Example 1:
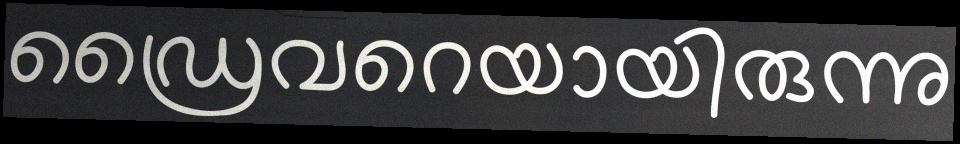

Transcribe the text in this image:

ഡ്രൈവറെയായിരുന്നു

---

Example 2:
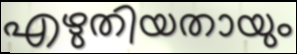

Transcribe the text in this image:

എഴുതിയതായും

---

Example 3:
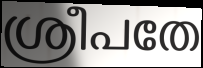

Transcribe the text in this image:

ശ്രീപതേ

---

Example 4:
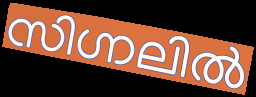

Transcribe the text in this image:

സിഗ്നലിൽ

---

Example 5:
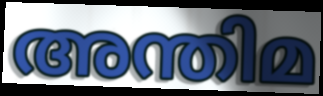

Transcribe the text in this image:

അന്തിമ